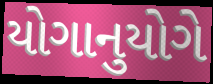
યોગાનુયોગે